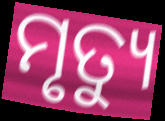
ମୃତ୍ୟୁ